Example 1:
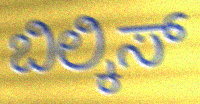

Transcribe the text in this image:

ಬಿಲ್ಕಿಸ್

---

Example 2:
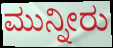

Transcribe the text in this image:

ಮುನ್ನೀರು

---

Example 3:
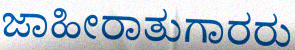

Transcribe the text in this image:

ಜಾಹೀರಾತುಗಾರರು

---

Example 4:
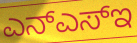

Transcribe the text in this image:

ಎನ್ಎಸ್ಇ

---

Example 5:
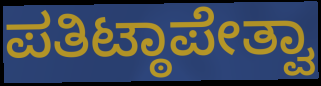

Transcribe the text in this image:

ಪತಿಟ್ಠಾಪೇತ್ವಾ